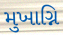
મુખાગ્નિ